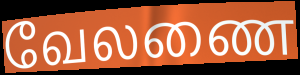
வேலணை